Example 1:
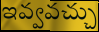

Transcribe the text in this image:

ఇవ్వవచ్చు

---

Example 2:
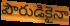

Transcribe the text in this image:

పౌరుడికైనా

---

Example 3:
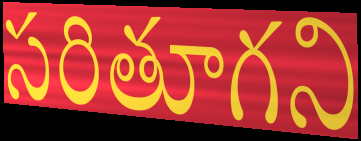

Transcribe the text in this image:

సరితూగని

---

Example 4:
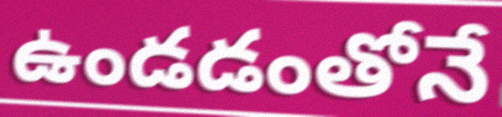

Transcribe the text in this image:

ఉండడంతోనే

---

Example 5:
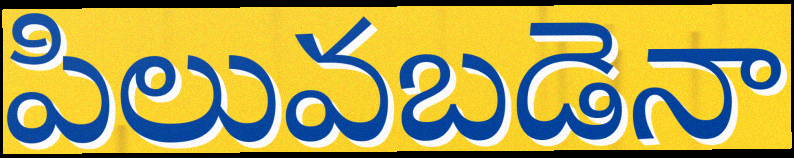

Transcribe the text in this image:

పిలువబడెనా